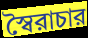
স্বৈরাচার